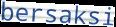
bersaksi